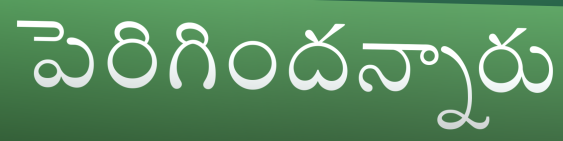
పెరిగిందన్నారు